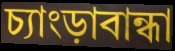
চ্যাংড়াবান্ধা